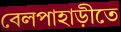
বেলপাহাড়ীতে